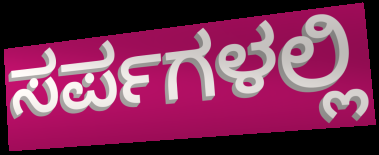
ಸರ್ಪಗಳಲ್ಲಿ